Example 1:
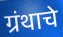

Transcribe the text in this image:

ग्रंथाचे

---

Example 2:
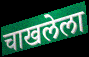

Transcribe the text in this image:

चाखलेला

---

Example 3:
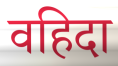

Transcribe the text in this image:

वहिदा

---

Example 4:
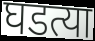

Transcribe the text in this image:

घडत्या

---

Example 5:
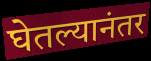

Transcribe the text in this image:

घेतल्यानंतर